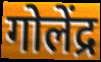
गोलेंद्र